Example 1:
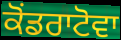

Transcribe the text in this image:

ਕੋਂਡਰਾਟੋਵਾ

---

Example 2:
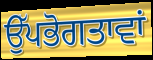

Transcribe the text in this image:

ਉੱਪਭੋਗਤਾਵਾਂ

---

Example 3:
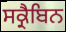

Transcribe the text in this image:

ਸਕ੍ਰੈਬਿਨ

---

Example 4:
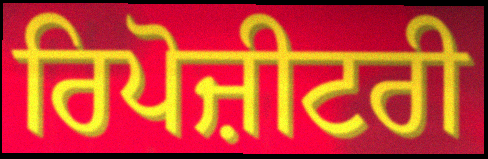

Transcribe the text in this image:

ਰਿਪੋਜ਼ੀਟਰੀ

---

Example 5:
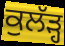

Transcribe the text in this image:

ਕੁਲੱੜ੍ਹ